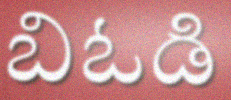
బిఓడి